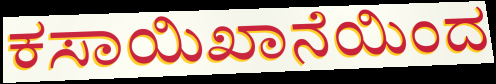
ಕಸಾಯಿಖಾನೆಯಿಂದ